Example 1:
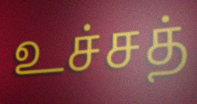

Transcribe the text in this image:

உச்சத்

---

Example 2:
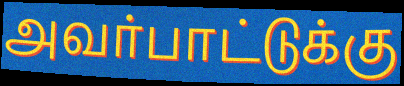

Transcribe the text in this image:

அவர்பாட்டுக்கு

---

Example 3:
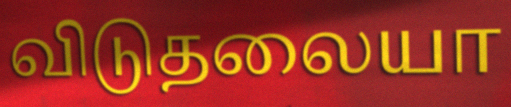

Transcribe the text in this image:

விடுதலையா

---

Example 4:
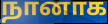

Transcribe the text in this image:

நானாக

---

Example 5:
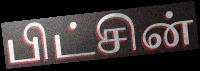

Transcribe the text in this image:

பிட்சின்